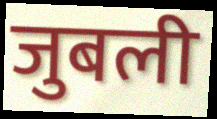
जुबली